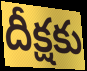
దీక్షకు